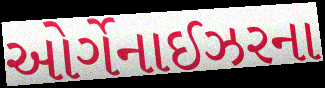
ઓર્ગેનાઈઝરના